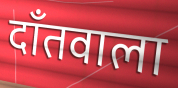
दाँतवाला